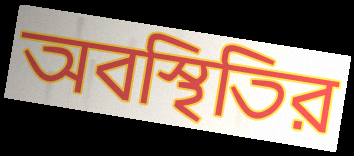
অবস্থিতির